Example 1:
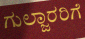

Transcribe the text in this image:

ಗುಲ್ಜಾರರಿಗೆ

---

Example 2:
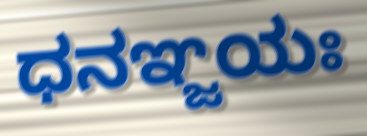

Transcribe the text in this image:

ಧನಞ್ಜಯಃ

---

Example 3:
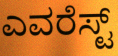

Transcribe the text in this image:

ಎವರೆಸ್ಟ್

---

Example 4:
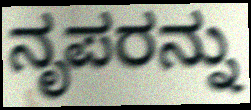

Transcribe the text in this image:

ನೃಪರನ್ನು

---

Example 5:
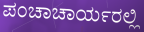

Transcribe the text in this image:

ಪಂಚಾಚಾರ್ಯರಲ್ಲಿ